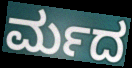
ರ್ಮದ